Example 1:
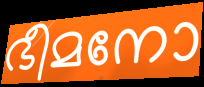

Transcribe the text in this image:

ഭീമനോ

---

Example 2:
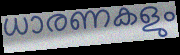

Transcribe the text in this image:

ധാരണകളും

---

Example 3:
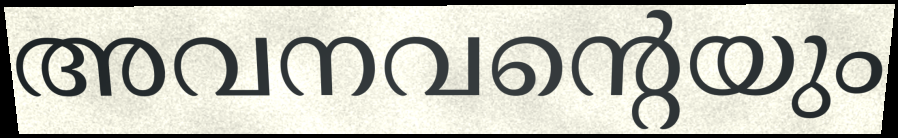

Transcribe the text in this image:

അവനവന്റെയും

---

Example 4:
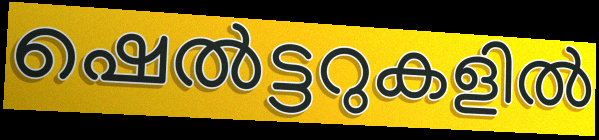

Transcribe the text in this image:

ഷെൽട്ടറുകളിൽ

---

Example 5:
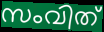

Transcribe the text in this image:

സംവിത്